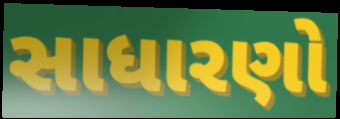
સાધારણો